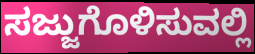
ಸಜ್ಜುಗೊಳಿಸುವಲ್ಲಿ